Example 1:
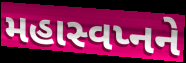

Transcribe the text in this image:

મહાસ્વપ્નને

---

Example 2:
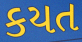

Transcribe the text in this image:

કયત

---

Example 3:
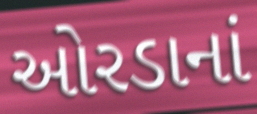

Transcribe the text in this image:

ઓરડાનાં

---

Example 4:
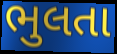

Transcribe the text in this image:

ભુલતા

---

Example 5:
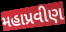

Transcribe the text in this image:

મહાપ્રવીણ